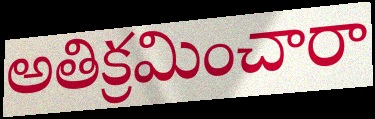
అతిక్రమించారా